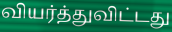
வியர்த்துவிட்டது